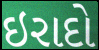
ઇરાદો